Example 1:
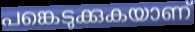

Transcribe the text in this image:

പങ്കെടുക്കുകയാണ്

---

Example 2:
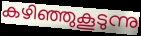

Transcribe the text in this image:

കഴിഞ്ഞുകൂടുന്നു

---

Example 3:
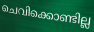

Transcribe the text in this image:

ചെവിക്കൊണ്ടില്ല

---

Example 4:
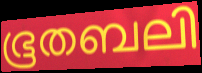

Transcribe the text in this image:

ഭൂതബലി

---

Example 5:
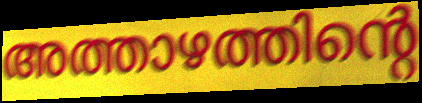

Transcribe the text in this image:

അത്താഴത്തിന്റെ